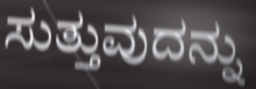
ಸುತ್ತುವುದನ್ನು